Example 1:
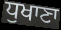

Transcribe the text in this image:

ਧੁਖਾਣਾ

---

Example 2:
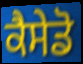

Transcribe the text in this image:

ਕੈਸੇਡੋ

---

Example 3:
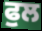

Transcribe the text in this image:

ਫੁਲ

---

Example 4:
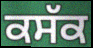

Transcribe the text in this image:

ਕਸੱਕ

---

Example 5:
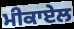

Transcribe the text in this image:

ਮੀਕਾਏਲ